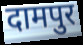
दामपुर